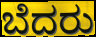
ಬೆದರು